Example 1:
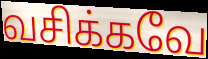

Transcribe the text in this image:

வசிக்கவே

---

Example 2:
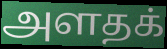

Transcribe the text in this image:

அளதக்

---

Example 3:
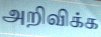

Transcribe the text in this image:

அறிவிக்க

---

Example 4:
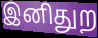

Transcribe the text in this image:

இனிதுற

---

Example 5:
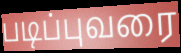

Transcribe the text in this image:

படிப்புவரை